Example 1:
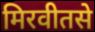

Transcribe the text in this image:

मिरवीतसे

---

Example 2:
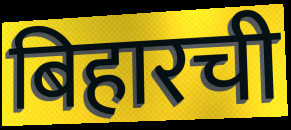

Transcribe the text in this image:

बिहारची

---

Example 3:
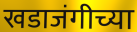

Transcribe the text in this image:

खडाजंगीच्या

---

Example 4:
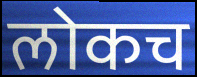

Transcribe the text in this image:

लोकच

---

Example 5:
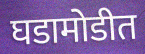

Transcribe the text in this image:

घडामोडीत